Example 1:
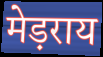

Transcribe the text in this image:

मेड़राय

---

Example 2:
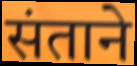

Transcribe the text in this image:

संताने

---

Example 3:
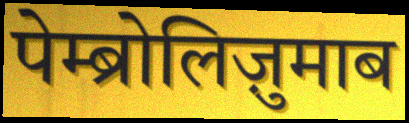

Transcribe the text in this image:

पेम्ब्रोलिज़ुमाब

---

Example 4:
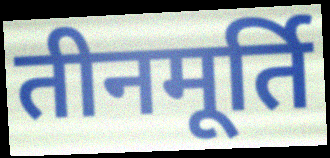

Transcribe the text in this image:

तीनमूर्ति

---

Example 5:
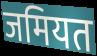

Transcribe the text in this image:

जमियत